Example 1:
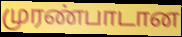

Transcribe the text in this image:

முரண்பாடான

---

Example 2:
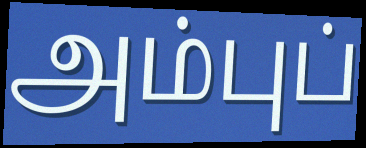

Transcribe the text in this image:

அம்புப்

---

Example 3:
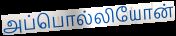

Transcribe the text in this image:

அப்பொல்லியோன்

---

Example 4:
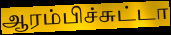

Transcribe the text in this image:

ஆரம்பிச்சுட்டா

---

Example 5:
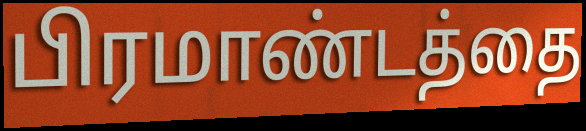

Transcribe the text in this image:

பிரமாண்டத்தை